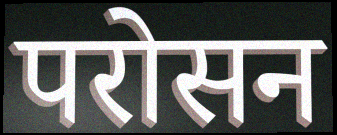
परोसन